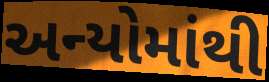
અન્યોમાંથી